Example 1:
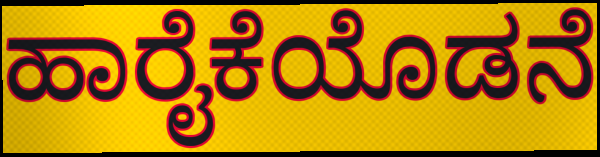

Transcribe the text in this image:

ಹಾರೈಕೆಯೊಡನೆ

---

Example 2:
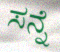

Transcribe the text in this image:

ಸನ್ನೆ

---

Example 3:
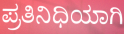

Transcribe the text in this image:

ಪ್ರತಿನಿಧಿಯಾಗಿ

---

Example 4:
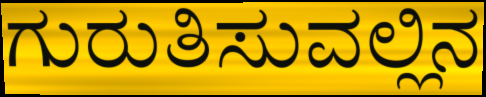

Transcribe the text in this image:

ಗುರುತಿಸುವಲ್ಲಿನ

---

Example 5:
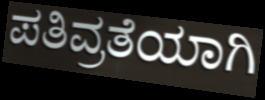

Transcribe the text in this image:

ಪತಿವ್ರತೆಯಾಗಿ